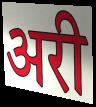
अरी